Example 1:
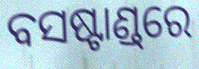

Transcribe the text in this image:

ବସଷ୍ଟାଣ୍ଡ୍‌ରେ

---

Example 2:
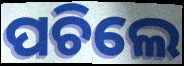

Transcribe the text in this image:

ପଚିଲେ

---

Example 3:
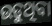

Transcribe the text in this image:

ଉଡୁଥିବା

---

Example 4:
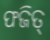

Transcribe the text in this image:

ଫଜିତ୍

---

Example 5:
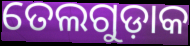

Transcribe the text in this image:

ତେଲଗୁଡ଼ାକ